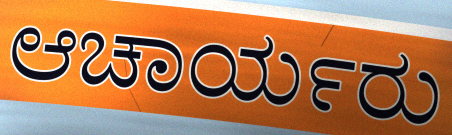
ಆಚಾರ್ಯರು